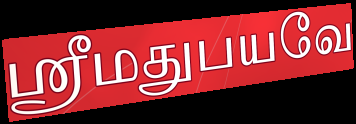
ஸ்ரீமதுபயவே